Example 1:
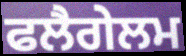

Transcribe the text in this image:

ਫਲੈਗੇਲਮ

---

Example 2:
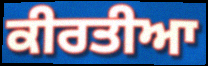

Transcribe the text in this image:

ਕੀਰਤੀਆ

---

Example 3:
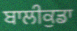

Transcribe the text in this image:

ਬਾਲੀਕੁਡਾ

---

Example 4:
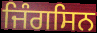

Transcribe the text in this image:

ਜਿੰਗਸਿਨ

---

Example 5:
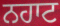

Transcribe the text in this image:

ਨਹਾਟ